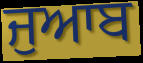
ਜੁਆਬ